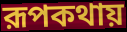
রূপকথায়